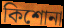
কিশোনা